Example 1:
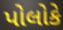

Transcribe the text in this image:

પોલોકે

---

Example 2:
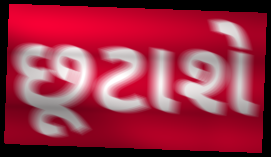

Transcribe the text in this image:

છૂટાશે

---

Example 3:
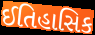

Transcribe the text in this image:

ઈતિહાસિક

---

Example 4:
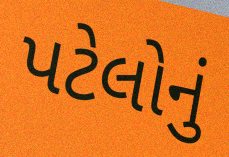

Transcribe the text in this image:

પટેલોનું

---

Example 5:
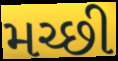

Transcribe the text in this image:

મચ્છી